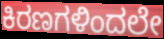
ಕಿರಣಗಳಿಂದಲೇ